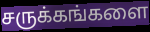
சருக்கங்களை